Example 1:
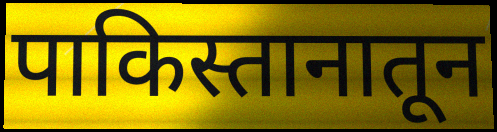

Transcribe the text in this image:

पाकिस्तानातून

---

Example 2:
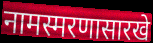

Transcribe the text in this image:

नामस्मरणासारखे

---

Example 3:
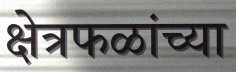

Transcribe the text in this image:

क्षेत्रफळांच्या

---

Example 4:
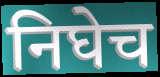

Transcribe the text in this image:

निघेच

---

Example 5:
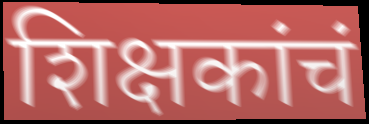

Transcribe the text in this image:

शिक्षकांचं